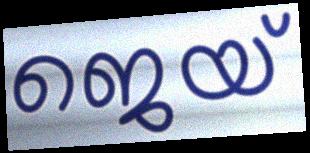
ജെയ്